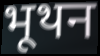
भूथन